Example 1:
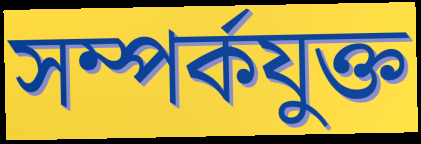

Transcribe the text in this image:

সম্পর্কযুক্ত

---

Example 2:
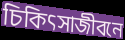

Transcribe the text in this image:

চিকিৎসাজীবনে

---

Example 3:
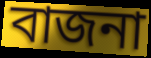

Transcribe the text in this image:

বাজনা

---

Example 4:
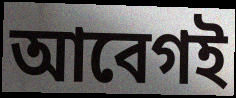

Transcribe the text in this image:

আবেগই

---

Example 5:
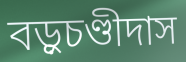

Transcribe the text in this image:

বড়ুচণ্ডীদাস